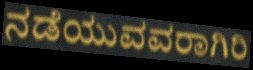
ನಡೆಯುವವರಾಗಿರಿ